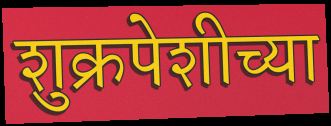
शुक्रपेशीच्या